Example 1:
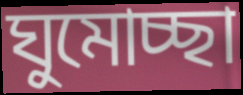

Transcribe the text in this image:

ঘুমোচ্ছা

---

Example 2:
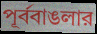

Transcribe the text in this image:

পূর্ববাঙলার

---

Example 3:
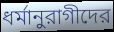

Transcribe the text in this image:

ধর্মানুরাগীদের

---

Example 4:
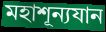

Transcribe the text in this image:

মহাশূন্যযান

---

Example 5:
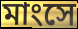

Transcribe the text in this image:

মাংসে